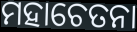
ମହାଚେତନା